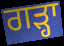
ਗੜ੍ਹਾ